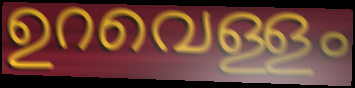
ഉറവെള്ളം